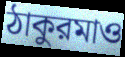
ঠাকুরমাও